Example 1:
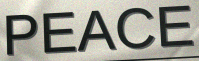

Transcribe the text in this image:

PEACE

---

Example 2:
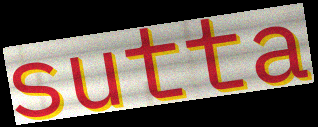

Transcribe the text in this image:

sutta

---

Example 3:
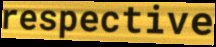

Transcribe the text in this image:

respective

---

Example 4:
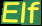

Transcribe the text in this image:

Elf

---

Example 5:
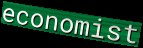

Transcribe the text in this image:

economist